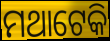
ମଥାଟେକି